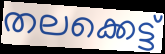
തലക്കെട്ട്